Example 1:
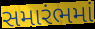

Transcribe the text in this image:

સમારંભમાં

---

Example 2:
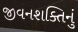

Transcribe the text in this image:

જીવનશક્તિનું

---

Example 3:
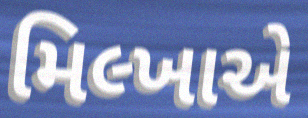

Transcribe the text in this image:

મિલ્ખાએ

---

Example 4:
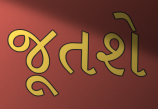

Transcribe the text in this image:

જૂતશે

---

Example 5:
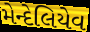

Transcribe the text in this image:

મેન્દેલિયેવ